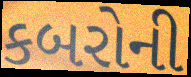
કબરોની